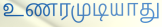
உணரமுடியாது